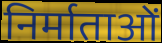
निर्माताओं